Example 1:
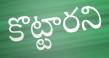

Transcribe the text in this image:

కొట్టారని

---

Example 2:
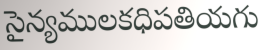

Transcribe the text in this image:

సైన్యములకధిపతియగు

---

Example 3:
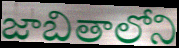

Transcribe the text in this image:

జాబితాలోని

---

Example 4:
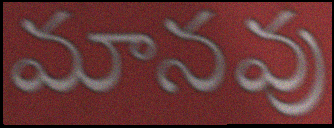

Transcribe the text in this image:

మానవు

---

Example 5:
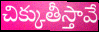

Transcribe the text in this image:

చిక్కుతీస్తావే